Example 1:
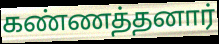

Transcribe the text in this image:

கண்ணத்தனார்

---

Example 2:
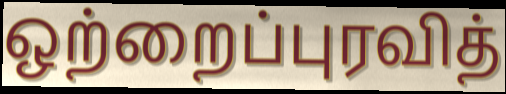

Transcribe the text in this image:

ஒற்றைப்புரவித்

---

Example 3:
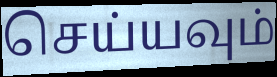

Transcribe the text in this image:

செய்யவும்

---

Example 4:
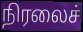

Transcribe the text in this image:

நிரலைச்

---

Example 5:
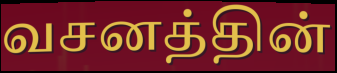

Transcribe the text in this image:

வசனத்தின்